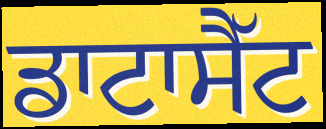
ਡਾਟਾਸੈੱਟ